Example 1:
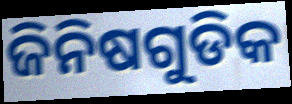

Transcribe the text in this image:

ଜିନିଷଗୁଡିକ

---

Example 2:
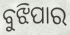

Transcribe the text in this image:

ବୁଝିପାର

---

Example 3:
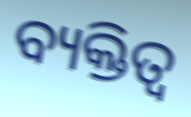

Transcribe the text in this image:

ବ୍ୟକ୍ତିତ୍ଵ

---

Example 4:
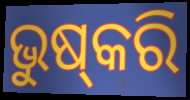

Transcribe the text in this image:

ଭୁଷ୍‌କରି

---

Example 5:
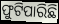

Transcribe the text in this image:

ଫୁଟିପାରିଛି